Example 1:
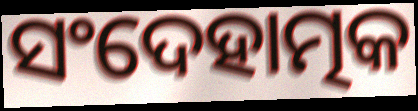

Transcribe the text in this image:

ସଂଦେହାତ୍ମକ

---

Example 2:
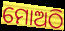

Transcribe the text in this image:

ମୋଅଠି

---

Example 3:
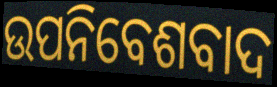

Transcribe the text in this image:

ଉପନିବେଶବାଦ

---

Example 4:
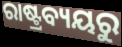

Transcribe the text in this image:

ରାଷ୍ଟ୍ରବ୍ୟୟରୁ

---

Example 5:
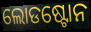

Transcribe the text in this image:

ଲୋଡଷ୍ଟୋନ